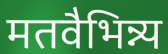
मतवैभिन्न्य